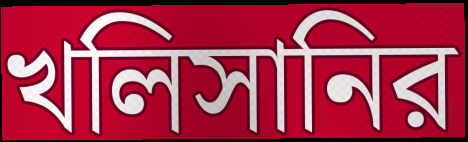
খলিসানির